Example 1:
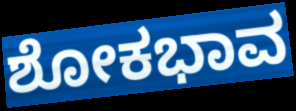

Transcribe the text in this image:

ಶೋಕಭಾವ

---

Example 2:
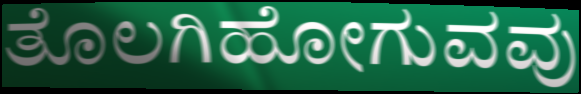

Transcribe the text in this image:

ತೊಲಗಿಹೋಗುವವು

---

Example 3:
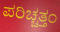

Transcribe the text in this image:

ಪರಿಚ್ಚತ್ತಂ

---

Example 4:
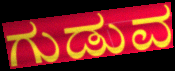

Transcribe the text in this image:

ಗುಡುವ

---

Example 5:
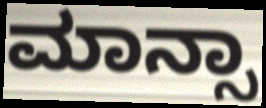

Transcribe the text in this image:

ಮಾನ್ಸಾ